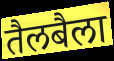
तैलबैला